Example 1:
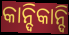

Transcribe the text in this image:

କାନ୍ଦିକାନ୍ଦି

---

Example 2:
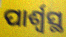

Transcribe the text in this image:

ପାର୍ଶ୍ୱସ୍ଥ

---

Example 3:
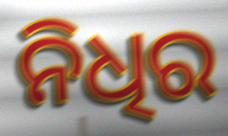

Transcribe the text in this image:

ନିଧିର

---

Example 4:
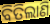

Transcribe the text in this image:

ବିତିଲାଣି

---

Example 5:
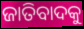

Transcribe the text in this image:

ଜାତିବାଦକୁ